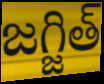
జగ్జిత్